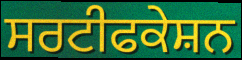
ਸਰਟੀਫਕੇਸ਼ਨ